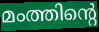
മംത്തിന്റെ